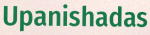
Upanishadas